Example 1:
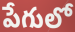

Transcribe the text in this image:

పేగులో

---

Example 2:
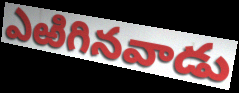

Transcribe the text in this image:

ఎఱిగినవాడు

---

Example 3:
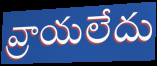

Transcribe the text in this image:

వ్రాయలేదు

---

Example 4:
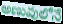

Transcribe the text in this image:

అణువులోనే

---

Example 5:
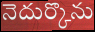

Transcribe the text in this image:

నెదుర్కొను